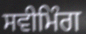
ਸਵੀਮਿੰਗ